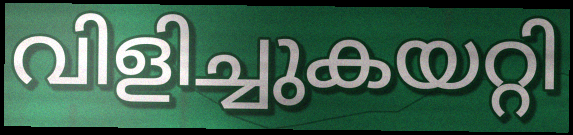
വിളിച്ചുകയറ്റി